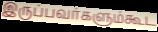
இருப்பவர்களும்கூட